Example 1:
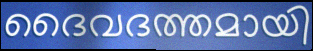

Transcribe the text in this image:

ദൈവദത്തമായി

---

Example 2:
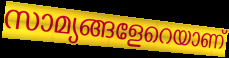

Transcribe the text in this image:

സാമ്യങ്ങളേറെയാണ്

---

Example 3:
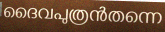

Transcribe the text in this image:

ദൈവപുത്രൻതന്നെ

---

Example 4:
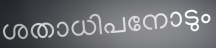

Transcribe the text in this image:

ശതാധിപനോടും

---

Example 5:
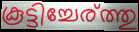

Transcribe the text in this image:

കൂട്ടിച്ചേര്ത്തു